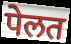
पेलत